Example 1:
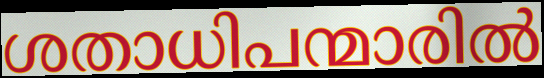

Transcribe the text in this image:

ശതാധിപന്മാരിൽ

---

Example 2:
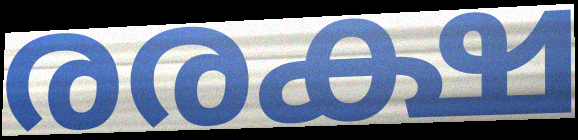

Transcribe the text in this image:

രരക്ഷ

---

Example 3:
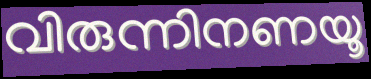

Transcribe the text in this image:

വിരുന്നിനണയൂ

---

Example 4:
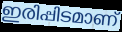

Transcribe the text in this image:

ഇരിപ്പിടമാണ്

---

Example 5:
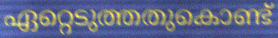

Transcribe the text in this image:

ഏറ്റെടുത്തതുകൊണ്ട്